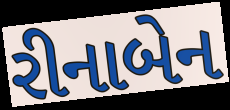
રીનાબેન